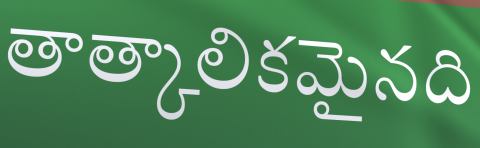
తాత్కాలికమైనది